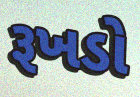
રૂખડો